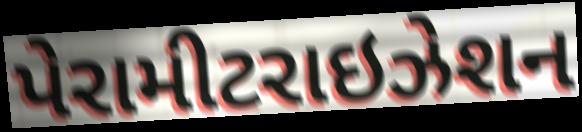
પેરામીટરાઇઝેશન